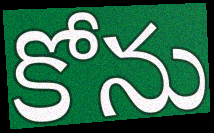
కోను